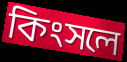
কিংসলে